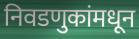
निवडणुकांमधून